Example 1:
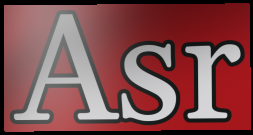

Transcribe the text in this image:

Asr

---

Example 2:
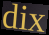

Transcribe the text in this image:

dix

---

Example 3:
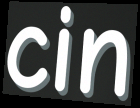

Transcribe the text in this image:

cin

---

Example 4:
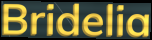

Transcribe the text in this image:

Bridelia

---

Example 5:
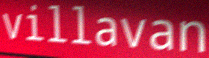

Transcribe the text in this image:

villavan